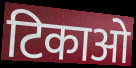
टिकाओ